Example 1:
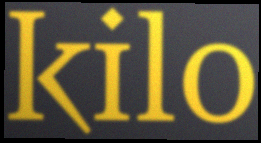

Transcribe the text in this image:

kilo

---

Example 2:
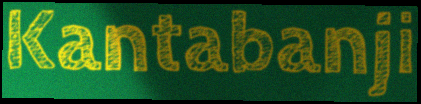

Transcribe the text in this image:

Kantabanji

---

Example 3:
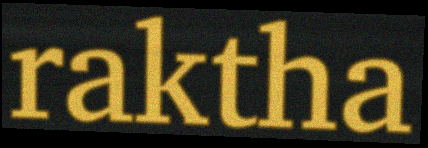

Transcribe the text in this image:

raktha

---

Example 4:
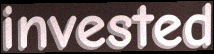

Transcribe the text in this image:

invested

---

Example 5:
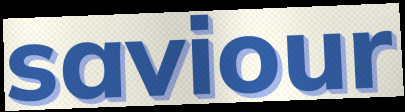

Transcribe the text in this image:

saviour